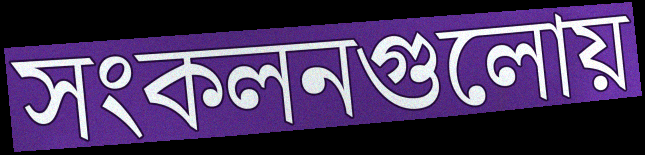
সংকলনগুলোয়